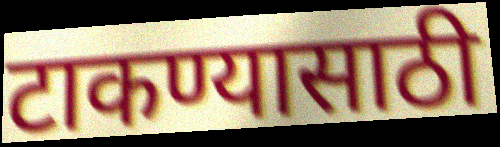
टाकण्यासाठी